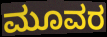
ಮೂವರ